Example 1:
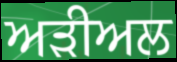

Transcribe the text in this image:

ਅੜੀਅਲ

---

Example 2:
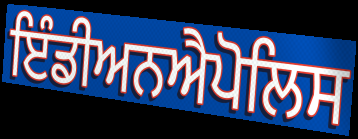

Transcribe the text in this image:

ਇੰਡੀਅਨਐਪੋਲਿਸ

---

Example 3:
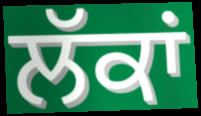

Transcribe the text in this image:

ਲੱਕਾਂ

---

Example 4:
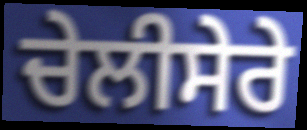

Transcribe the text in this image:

ਚੇਲੀਸੇਰੇ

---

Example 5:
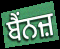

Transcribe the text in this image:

ਬੈਂਨਜ਼